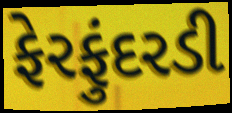
ફેરફુંદરડી